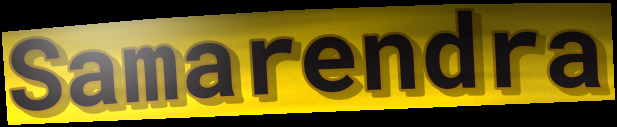
Samarendra